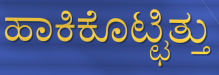
ಹಾಕಿಕೊಟ್ಟಿತ್ತು